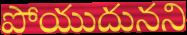
పోయుదునని